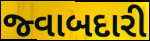
જ્વાબદારી